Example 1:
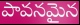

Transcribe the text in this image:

పావనమైన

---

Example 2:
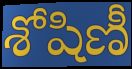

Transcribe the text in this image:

శోషిణీ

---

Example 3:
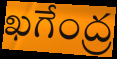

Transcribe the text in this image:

ఖగేంద్ర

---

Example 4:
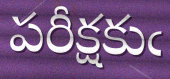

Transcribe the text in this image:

పరీక్షకుఁ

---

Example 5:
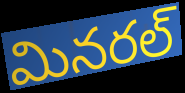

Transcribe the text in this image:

మినరల్